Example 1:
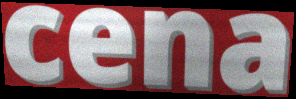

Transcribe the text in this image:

cena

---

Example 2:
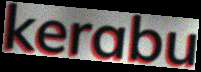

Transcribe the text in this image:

kerabu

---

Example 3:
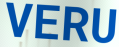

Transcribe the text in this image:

VERU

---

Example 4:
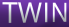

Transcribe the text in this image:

TWIN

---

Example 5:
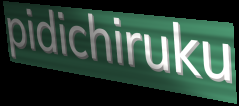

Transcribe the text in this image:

pidichiruku